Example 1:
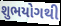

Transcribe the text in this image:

શુભયોગથી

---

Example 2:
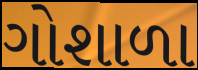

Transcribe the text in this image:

ગોશાળા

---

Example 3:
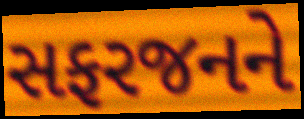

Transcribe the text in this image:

સફરજનને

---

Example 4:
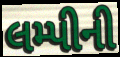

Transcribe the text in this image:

લમ્પીની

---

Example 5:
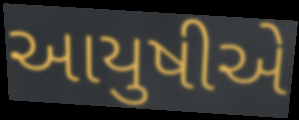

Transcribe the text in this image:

આયુષીએ